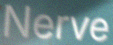
Nerve